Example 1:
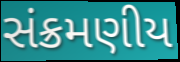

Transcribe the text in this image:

સંક્રમણીય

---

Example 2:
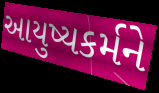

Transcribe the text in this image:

આયુષ્યકર્મને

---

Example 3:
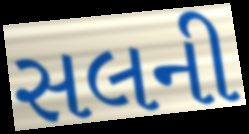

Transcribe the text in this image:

સલની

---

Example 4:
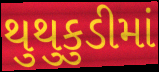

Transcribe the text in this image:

થુથુકુડીમાં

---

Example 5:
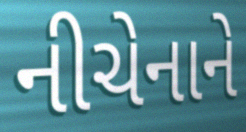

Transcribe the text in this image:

નીચેનાને